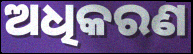
ଅଧିକରଣ